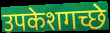
उपकेशगच्छे